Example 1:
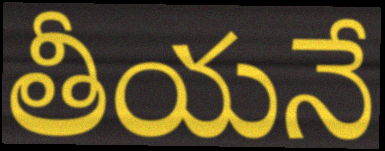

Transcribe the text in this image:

తీయనే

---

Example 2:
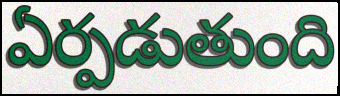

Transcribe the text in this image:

ఏర్పడుతుంది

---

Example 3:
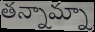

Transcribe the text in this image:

తన్నామ్నా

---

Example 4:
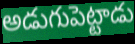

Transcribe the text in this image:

అడుగుపెట్టాడు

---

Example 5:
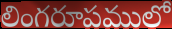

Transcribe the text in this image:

లింగరూపములో